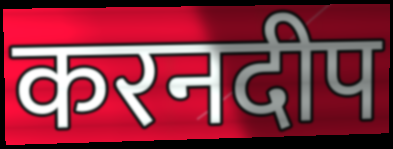
करनदीप